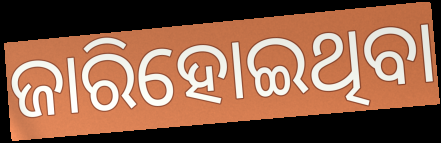
ଜାରିହୋଇଥିବା